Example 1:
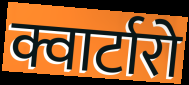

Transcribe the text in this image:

क्वार्टारो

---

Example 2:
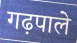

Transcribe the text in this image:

गढ़पाले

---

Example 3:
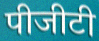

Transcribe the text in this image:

पीजीटी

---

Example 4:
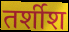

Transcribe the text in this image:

तर्शीश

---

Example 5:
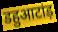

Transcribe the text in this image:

डहुआटांड़